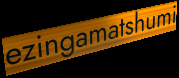
ezingamatshumi